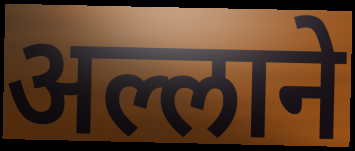
अल्लाने